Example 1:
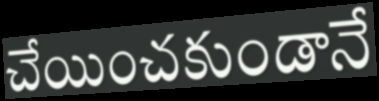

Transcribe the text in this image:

చేయించకుండానే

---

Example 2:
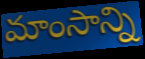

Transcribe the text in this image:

మాంసాన్ని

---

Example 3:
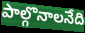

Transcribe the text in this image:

పాల్గొనాలనేది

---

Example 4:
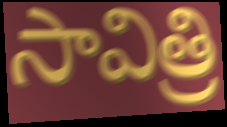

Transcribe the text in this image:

సావిత్రి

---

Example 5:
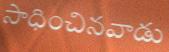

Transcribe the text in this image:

సాధించినవాడు